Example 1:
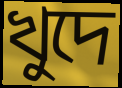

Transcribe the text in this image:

খুদে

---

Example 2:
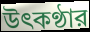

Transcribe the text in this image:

উৎকণ্ঠার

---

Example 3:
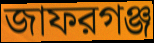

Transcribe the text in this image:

জাফরগঞ্জ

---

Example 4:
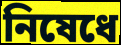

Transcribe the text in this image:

নিষেধে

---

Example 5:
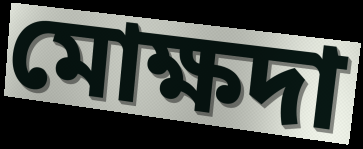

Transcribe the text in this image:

মোক্ষদা